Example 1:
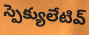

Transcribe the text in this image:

స్పెక్యులేటివ్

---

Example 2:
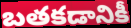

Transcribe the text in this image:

బతకడానికీ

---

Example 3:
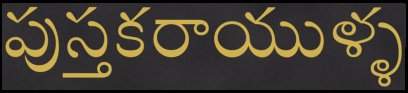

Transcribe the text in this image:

పుస్తకరాయుళ్ళ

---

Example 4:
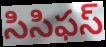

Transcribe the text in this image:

సిసిఫస్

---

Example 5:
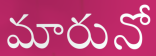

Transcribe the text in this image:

మారునో